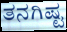
ತನಗಿಷ್ಟ